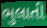
ભુલાતી